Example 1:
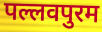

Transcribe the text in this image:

पल्लवपुरम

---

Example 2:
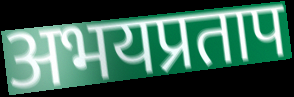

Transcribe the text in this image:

अभयप्रताप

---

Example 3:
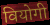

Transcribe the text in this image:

वियोगी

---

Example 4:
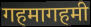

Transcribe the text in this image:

गहमागहमी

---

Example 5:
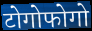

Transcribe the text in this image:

टोगोफोगो